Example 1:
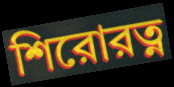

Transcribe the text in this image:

শিরোরত্ন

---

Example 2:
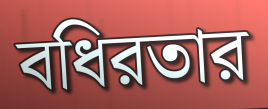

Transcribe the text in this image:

বধিরতার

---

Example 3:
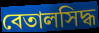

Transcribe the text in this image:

বেতালসিদ্ধ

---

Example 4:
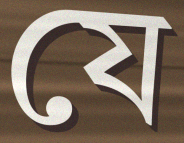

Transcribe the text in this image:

যে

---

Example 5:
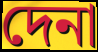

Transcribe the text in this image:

দেনা